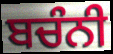
ਬਚੰਨੀ